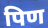
पिण